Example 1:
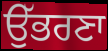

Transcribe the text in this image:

ਉੱਭਰਣਾ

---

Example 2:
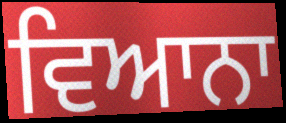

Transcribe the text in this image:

ਵਿਆਨਾ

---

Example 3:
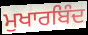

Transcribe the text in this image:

ਮੁਖਾਰਬਿੰਦ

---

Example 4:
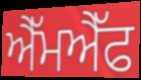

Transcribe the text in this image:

ਐੱਮਐੱਫ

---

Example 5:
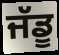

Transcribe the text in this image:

ਜੱਡੂ